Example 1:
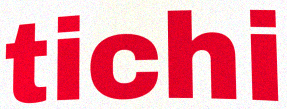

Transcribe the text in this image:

tichi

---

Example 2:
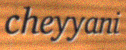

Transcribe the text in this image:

cheyyani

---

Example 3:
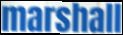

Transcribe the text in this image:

marshall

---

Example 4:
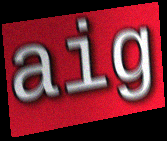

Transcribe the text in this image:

aig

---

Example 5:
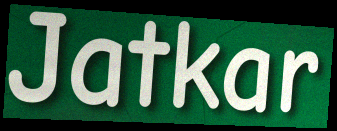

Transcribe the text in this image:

Jatkar